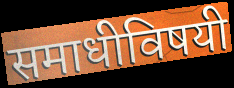
समाधीविषयी